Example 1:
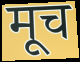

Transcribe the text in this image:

मूच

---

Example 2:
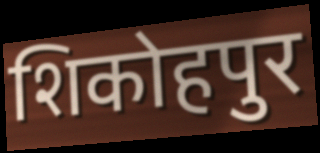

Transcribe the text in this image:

शिकोहपुर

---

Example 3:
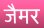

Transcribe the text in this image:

जैमर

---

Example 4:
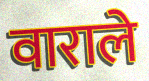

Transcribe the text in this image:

वाराले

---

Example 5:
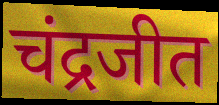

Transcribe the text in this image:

चंद्रजीत